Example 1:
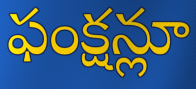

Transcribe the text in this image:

ఫంక్షన్లూ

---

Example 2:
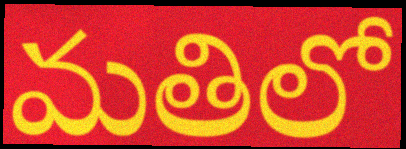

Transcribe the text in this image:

మతిలో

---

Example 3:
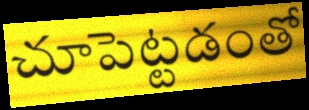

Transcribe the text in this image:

చూపెట్టడంతో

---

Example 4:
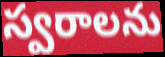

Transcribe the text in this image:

స్వరాలను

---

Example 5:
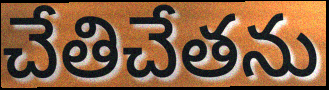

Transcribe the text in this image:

చేతిచేతను